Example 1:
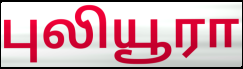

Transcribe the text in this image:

புலியூரா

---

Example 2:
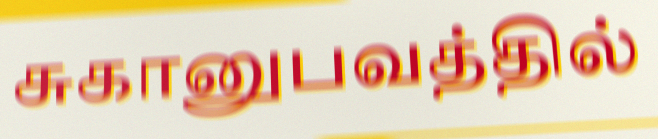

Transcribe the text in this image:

சுகானுபவத்தில்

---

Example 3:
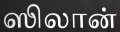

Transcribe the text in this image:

ஸிலான்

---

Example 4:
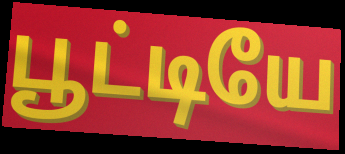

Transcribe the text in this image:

பூட்டியே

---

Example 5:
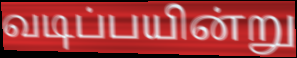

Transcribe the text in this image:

வடிப்பயின்று